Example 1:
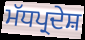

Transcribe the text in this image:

ਮੱਧਪ੍ਰਦੇਸ਼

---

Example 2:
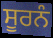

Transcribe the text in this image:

ਸੂਰਨੰ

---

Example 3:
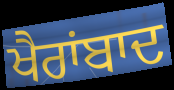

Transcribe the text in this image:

ਖੈਰਾਂਬਾਦ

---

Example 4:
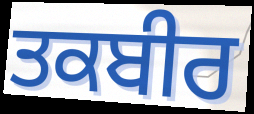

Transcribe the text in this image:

ਤਕਬੀਰ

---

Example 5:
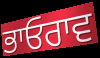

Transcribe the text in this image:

ਭਾਓਰਾਵ